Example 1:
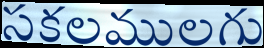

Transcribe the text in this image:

సకలములగు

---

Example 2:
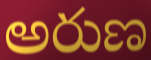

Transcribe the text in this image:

అరుణ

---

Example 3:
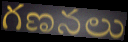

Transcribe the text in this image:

గణనలు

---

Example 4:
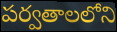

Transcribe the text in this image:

పర్వతాలలోని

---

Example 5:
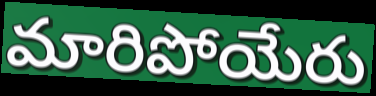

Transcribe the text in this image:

మారిపోయేరు